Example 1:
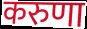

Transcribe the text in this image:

करुणा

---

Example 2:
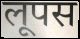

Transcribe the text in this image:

लूपस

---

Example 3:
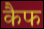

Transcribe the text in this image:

कैफ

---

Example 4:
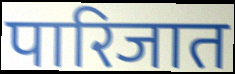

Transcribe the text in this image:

पारिजात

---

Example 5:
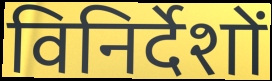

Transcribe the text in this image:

विनिर्देशों